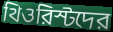
থিওরিস্টদের